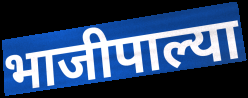
भाजीपाल्या